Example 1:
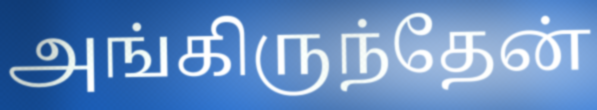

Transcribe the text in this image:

அங்கிருந்தேன்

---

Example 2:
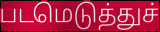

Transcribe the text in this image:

படமெடுத்துச்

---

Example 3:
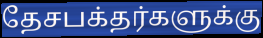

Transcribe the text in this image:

தேசபக்தர்களுக்கு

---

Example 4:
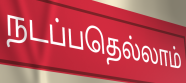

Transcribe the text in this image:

நடப்பதெல்லாம்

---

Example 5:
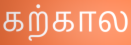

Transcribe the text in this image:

கற்கால